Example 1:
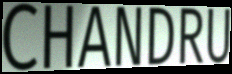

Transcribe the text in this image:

CHANDRU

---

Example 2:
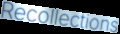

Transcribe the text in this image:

Recollections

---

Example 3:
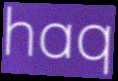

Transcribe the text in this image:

haq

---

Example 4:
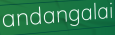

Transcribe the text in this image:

andangalai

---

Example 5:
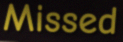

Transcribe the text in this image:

Missed